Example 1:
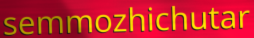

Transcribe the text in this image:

semmozhichutar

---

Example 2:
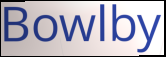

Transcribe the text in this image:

Bowlby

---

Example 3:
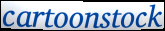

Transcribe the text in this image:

cartoonstock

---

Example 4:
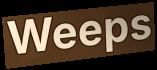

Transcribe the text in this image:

Weeps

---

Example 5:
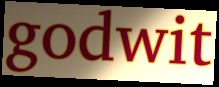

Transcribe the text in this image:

godwit